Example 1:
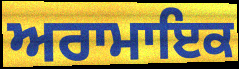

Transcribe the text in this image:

ਅਰਾਮਾਇਕ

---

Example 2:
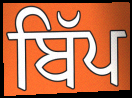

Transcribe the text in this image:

ਬਿੱਪ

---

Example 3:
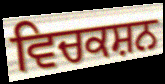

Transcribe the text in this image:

ਵਿਚਕਸ਼ਨ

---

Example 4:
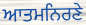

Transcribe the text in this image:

ਆਤਮਨਿਰਣੇ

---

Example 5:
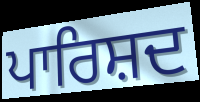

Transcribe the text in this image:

ਪਾਰਿਸ਼ਦ